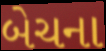
બેચના